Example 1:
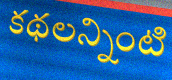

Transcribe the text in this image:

కథలన్నింటి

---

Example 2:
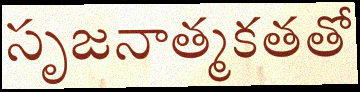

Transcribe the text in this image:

సృజనాత్మకతతో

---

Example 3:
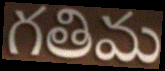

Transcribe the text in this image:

గతిమ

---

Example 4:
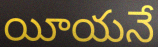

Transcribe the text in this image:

యీయనే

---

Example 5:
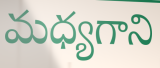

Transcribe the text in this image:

మధ్యగాని